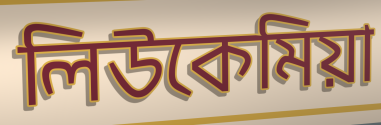
লিউকেমিয়া